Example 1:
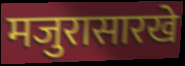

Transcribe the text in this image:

मजुरासारखे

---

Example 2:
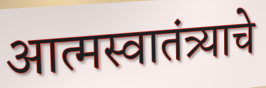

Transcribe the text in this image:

आत्मस्वातंत्र्याचे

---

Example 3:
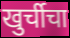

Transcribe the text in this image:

खुर्चीचा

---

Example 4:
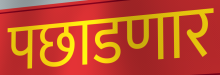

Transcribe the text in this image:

पछाडणार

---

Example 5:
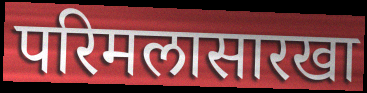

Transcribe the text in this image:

परिमलासारखा